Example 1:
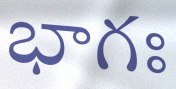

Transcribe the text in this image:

భాగః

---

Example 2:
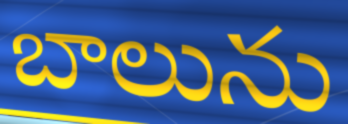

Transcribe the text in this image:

బాలును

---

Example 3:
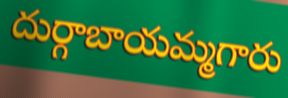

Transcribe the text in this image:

దుర్గాబాయమ్మగారు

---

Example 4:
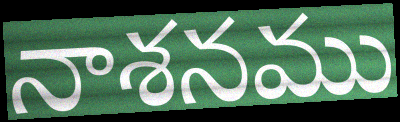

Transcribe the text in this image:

నాశనము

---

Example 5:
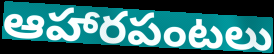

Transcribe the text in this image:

ఆహారపంటలు